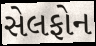
સેલફોન